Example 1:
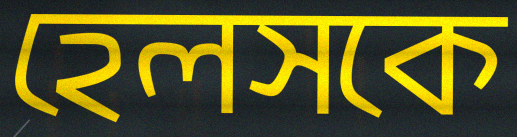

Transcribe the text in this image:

হেলসকে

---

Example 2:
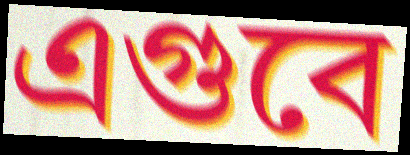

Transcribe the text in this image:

এগুবে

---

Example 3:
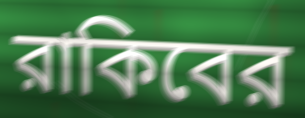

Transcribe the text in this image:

রাকিবের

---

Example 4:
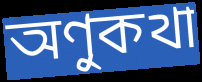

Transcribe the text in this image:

অণুকথা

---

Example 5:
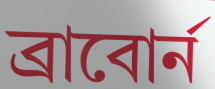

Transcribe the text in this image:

ব্রাবোর্ন